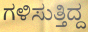
ಗಳಿಸುತ್ತಿದ್ದ